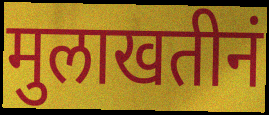
मुलाखतीनं